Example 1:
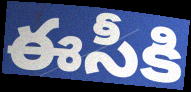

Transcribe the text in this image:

ఈసీకి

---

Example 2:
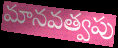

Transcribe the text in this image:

మానవత్వపు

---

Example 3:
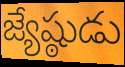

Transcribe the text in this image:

జ్యేష్ఠుడు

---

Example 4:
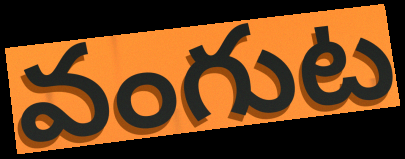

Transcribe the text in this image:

వంగుట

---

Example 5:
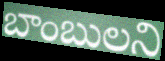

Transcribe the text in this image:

బాంబులని